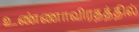
உண்ணாவிரதத்தில்